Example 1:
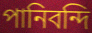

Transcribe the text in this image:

পানিবন্দি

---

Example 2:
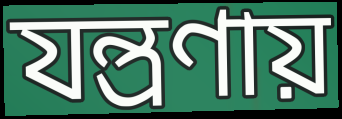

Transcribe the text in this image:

যন্ত্রণায়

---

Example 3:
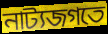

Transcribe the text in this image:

নাট্যজগতে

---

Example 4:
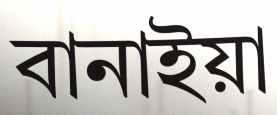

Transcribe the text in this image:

বানাইয়া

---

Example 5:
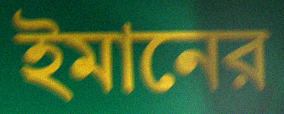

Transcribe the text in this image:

ইমানের